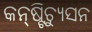
କନ୍‍ଷ୍ଟିଚ୍ୟୁସନ